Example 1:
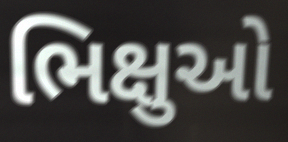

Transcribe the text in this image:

ભિક્ષુઓ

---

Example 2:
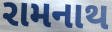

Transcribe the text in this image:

રામનાથ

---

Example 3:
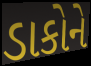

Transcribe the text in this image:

ડાકોને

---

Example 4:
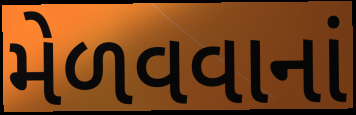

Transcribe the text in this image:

મેળવવાનાં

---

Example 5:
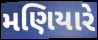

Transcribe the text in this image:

મણિયારે